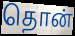
தொன்